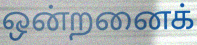
ஒன்றனைக்